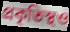
প্রকৃতিস্থও